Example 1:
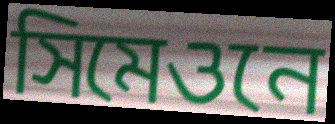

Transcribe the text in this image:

সিমেওনে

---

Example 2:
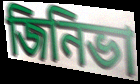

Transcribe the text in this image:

জিনিভা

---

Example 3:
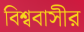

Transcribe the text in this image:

বিশ্ববাসীর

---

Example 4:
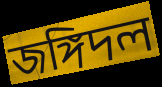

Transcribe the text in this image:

জঙ্গিদল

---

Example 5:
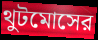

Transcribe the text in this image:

থুটমোসের